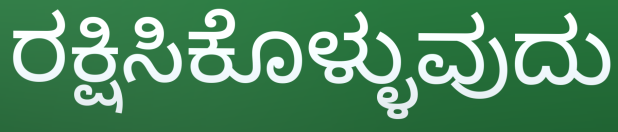
ರಕ್ಷಿಸಿಕೊಳ್ಳುವುದು